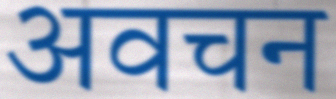
अवचन